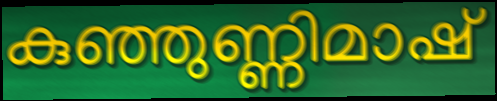
കുഞ്ഞുണ്ണിമാഷ്